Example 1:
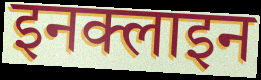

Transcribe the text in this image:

इनक्लाइन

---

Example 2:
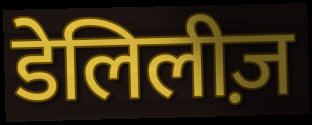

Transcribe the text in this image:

डेलिलीज़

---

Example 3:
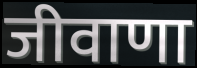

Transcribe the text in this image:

जीवाणा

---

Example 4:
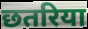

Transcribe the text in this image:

छतरिया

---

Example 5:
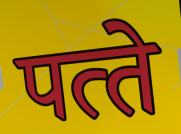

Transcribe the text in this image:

पत्‍ते